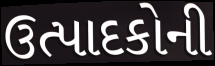
ઉત્પાદકોની